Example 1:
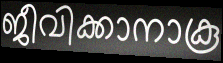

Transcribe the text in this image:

ജീവിക്കാനാകൂ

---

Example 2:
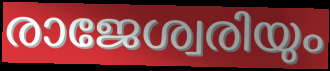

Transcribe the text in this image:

രാജേശ്വരിയും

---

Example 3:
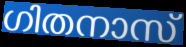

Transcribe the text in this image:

ഗിതനാസ്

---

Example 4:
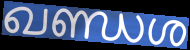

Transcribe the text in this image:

ഖണ്ഡശ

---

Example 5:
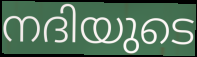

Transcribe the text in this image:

നദിയുടെ